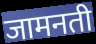
जामनती